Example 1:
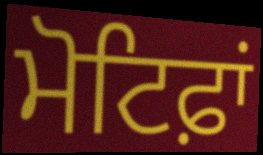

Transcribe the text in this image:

ਮੋਟਿਫ਼ਾਂ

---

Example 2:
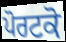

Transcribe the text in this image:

ਪੋਰਟਕੋ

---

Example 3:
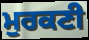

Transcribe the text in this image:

ਮੁਰਕਣੀ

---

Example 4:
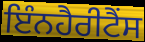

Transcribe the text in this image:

ਇੰਨਹੈਰੀਟੈੰਸ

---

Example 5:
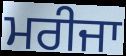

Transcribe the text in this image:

ਮਰੀਜਾ